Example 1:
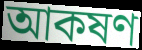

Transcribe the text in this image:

আকষণ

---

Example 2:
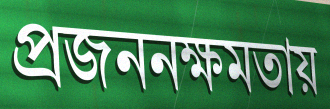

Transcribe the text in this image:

প্রজননক্ষমতায়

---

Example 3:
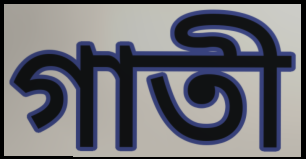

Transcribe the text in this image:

গাতী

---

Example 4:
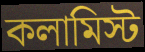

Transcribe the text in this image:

কলামিস্ট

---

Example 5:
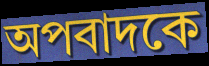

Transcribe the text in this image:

অপবাদকে